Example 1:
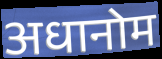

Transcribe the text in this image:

अधानोम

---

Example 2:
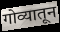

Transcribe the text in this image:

गोव्यातून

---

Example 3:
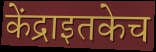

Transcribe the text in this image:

केंद्राइतकेच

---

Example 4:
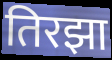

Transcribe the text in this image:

तिरझा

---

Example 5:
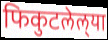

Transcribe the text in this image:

फिकुटलेल्या